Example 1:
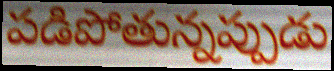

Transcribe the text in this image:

పడిపోతున్నప్పుడు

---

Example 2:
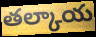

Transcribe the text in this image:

తల్కాయ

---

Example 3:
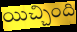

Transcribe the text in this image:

యిచ్చింది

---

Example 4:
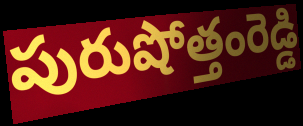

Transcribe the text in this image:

పురుషోత్తంరెడ్డి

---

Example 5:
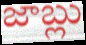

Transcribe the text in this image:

జాబ్లు